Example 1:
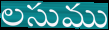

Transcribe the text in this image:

లసుము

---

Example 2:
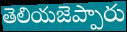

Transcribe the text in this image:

తెలియజెప్పారు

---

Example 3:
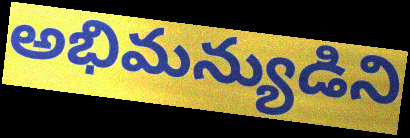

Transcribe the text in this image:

అభిమన్యుడిని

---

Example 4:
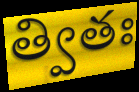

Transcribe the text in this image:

త్వితః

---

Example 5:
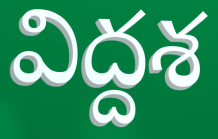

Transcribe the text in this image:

విద్దశ